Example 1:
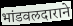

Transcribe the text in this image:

भांडवलदाराने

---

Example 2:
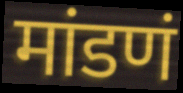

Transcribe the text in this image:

मांडणं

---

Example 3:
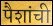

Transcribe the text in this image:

पैशांची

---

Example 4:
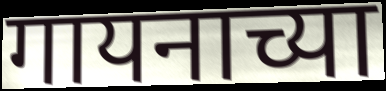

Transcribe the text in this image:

गायनाच्या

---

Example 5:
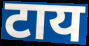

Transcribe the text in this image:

टाय